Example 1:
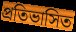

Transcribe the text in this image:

প্রতিভাসিত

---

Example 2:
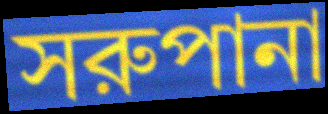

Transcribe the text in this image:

সরুপানা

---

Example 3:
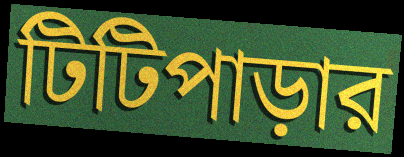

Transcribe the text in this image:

টিটিপাড়ার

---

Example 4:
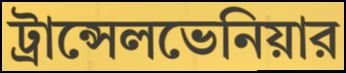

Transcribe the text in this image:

ট্রান্সেলভেনিয়ার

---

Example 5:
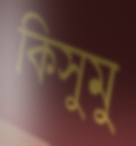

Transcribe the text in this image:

কিসুমু